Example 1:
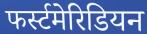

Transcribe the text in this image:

फर्स्टमेरिडियन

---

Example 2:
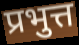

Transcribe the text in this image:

प्रभुत्त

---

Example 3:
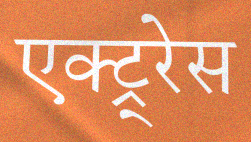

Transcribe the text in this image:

एक्ट्र्रेस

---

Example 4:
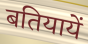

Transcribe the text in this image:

बतियायें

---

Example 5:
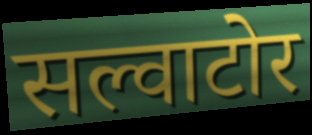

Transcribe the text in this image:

सल्वाटोर